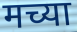
मच्या